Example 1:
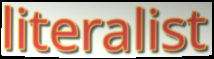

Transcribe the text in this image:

literalist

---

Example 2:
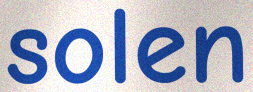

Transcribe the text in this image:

solen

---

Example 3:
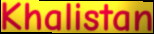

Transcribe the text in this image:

Khalistan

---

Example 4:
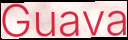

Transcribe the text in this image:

Guava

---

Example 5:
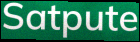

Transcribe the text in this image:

Satpute